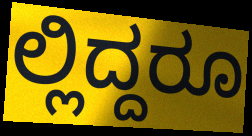
ಲ್ಲಿದ್ದರೂ